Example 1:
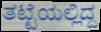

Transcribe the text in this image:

ತಟ್ಟೆಯಲ್ಲಿದ್ದ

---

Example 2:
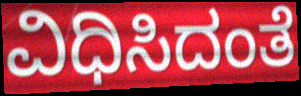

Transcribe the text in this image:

ವಿಧಿಸಿದಂತೆ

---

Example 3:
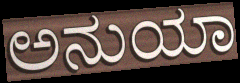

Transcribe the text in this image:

ಅನುಯಾ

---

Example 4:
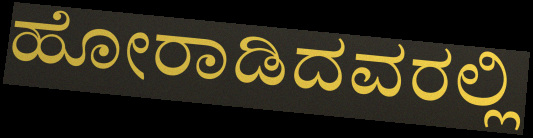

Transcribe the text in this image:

ಹೋರಾಡಿದವರಲ್ಲಿ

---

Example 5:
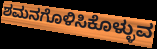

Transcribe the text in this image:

ಶಮನಗೊಳಿಸಿಕೊಳ್ಳುವ